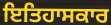
ਇਤਿਹਾਸਕਾਰ